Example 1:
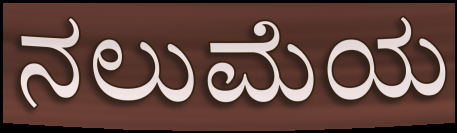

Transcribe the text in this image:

ನಲುಮೆಯ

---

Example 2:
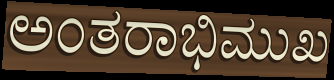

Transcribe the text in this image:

ಅಂತರಾಭಿಮುಖ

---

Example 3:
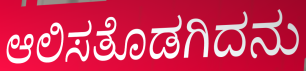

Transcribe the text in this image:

ಆಲಿಸತೊಡಗಿದನು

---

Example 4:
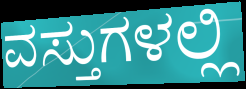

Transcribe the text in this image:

ವಸ್ತುಗಳಲ್ಲಿ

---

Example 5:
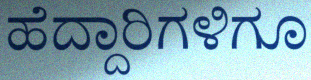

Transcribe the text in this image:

ಹೆದ್ದಾರಿಗಳಿಗೂ